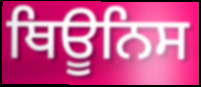
ਥਿਊਨਿਸ